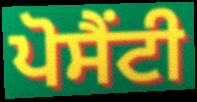
ਪੋਸੈਂਟੀ